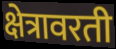
क्षेत्रावरती